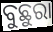
ବୁଛୁରା